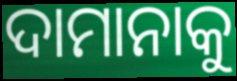
ଦାମାନାକୁ